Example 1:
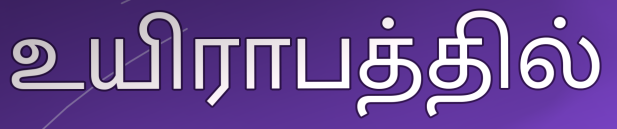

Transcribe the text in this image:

உயிராபத்தில்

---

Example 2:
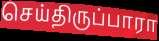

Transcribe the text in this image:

செய்திருப்பாரா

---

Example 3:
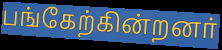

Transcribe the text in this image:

பங்கேற்கின்றனர்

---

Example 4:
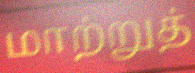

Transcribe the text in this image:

மாற்றுத்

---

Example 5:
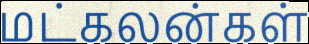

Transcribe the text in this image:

மட்கலன்கள்